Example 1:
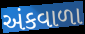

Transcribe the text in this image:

અંકવાળા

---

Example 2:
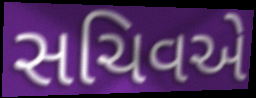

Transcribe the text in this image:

સચિવએ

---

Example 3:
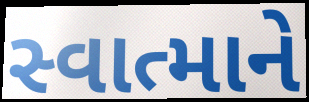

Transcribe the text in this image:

સ્વાત્માને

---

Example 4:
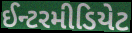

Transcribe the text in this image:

ઈન્ટરમીડિયેટ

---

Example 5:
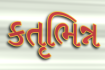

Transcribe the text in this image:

કતૃભિન્ન